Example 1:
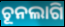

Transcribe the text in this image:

ଚୂନଲାଗି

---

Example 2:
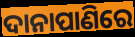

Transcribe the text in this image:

ଦାନାପାଣିରେ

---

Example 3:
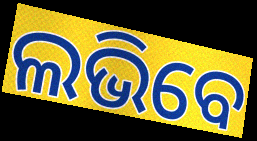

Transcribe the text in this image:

ଲଭିବେ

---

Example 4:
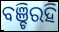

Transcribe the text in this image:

ବଞ୍ଚିରହି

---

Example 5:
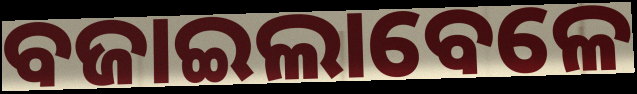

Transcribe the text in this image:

ବଜାଇଲାବେଳେ